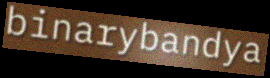
binarybandya